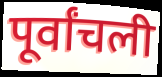
पूर्वांचली